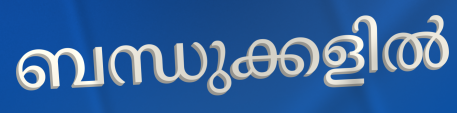
ബന്ധുക്കളിൽ